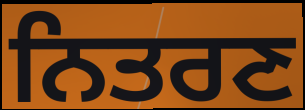
ਨਿਤਰਣ